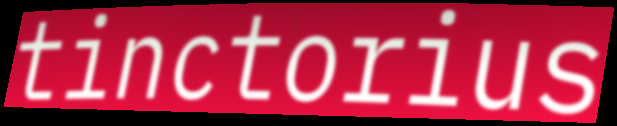
tinctorius